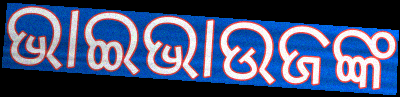
ଭାଇଭାଉଜଙ୍କ